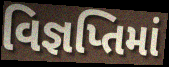
વિજ્ઞપ્તિમાં